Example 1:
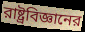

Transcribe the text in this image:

রাষ্ট্রবিজ্ঞানের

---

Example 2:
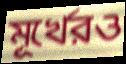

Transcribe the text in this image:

মূর্খেরও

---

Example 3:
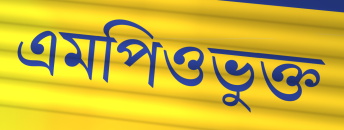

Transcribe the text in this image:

এমপিওভুক্ত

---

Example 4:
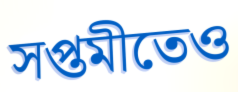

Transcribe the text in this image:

সপ্তমীতেও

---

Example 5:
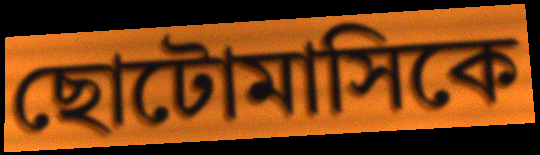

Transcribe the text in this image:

ছোটোমাসিকে